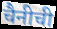
चैनीची